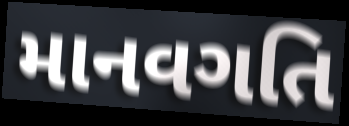
માનવગતિ